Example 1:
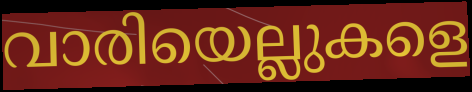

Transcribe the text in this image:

വാരിയെല്ലുകളെ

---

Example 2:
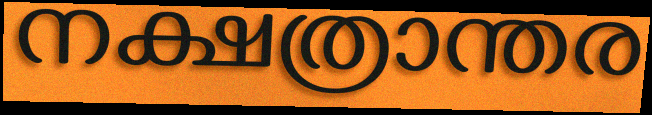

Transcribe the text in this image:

നക്ഷത്രാന്തര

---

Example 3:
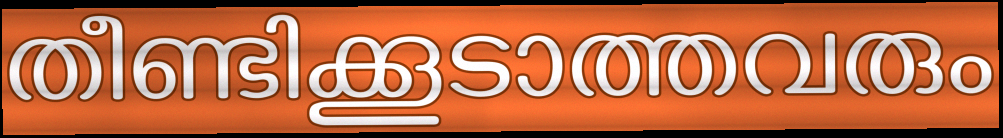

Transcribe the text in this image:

തീണ്ടിക്കൂടാത്തവരും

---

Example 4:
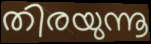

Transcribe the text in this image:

തിരയുന്നൂ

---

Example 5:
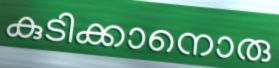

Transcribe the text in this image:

കുടിക്കാനൊരു